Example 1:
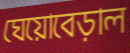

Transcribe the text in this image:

ঘেয়োবেড়াল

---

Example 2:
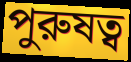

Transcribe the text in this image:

পুরুষত্ব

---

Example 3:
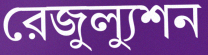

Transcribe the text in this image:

রেজুল্যুশন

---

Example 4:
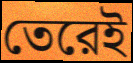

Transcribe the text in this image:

তেরেই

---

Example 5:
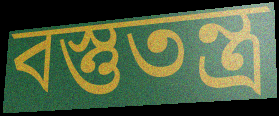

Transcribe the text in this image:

বস্তুতন্ত্র